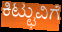
ಕಿಟ್ಟುವಿಗೆ